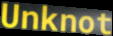
Unknot